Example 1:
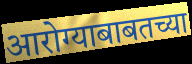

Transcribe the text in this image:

आरोग्याबाबतच्या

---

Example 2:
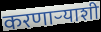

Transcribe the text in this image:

करणाऱ्याशी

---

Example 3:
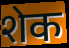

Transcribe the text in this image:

शेक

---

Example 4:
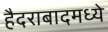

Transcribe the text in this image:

हैदराबादमध्ये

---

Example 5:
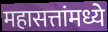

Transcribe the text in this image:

महासत्तांमध्ये